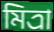
মিত্রা